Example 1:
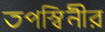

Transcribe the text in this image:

তপস্বিনীর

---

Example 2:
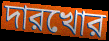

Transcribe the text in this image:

দারখোর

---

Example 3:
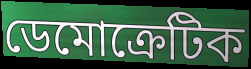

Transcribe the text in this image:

ডেমোক্রেটিক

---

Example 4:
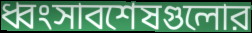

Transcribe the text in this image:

ধ্বংসাবশেষগুলোর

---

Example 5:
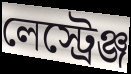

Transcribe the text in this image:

লেস্ট্রেঞ্জ